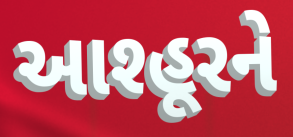
આશ્હૂરને